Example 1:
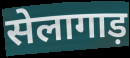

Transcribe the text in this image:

सेलागाड़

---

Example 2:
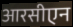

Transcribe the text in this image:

आरसीएन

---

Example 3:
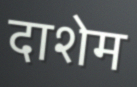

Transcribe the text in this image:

दाशेम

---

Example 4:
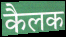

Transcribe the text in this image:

कैलक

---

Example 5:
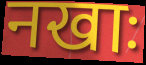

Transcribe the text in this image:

नखाः